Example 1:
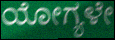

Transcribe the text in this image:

ಯೋಗ್ಯಳೇ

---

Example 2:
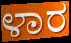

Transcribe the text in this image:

ಳಾರ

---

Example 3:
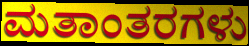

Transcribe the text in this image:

ಮತಾಂತರಗಳು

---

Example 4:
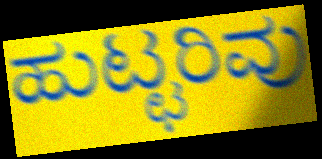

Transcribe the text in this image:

ಹುಟ್ಟರಿವು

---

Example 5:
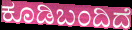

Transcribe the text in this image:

ಕೂಡಿಬಂದಿದೆ